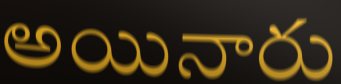
అయినారు